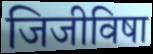
जिजीविषा